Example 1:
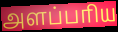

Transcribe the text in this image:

அளப்பரிய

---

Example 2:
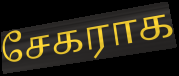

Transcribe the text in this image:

சேகராக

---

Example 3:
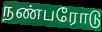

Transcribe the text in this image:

நண்பரோடு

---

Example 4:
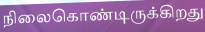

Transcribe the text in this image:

நிலைகொண்டிருக்கிறது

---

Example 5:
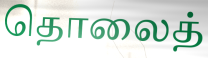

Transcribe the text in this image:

தொலைத்